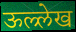
ऊल्लेख